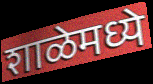
शाळेमध्ये